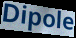
Dipole